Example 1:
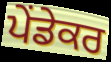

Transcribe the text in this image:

ਪੇਂਡੇਕਰ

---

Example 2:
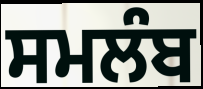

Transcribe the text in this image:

ਸਮਲੰਬ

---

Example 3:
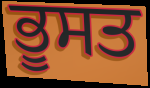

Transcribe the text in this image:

ਭੂਸਤ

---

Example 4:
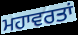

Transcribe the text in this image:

ਮਹਾਵਰਤਾਂ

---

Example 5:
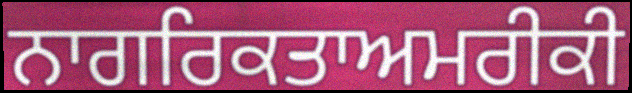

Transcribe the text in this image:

ਨਾਗਰਿਕਤਾਅਮਰੀਕੀ